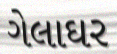
ગેલાઘર